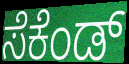
ಸೆಕೆಂಡ್